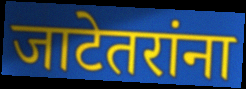
जाटेतरांना